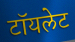
टॉयलेट